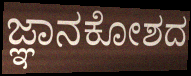
ಜ್ಞಾನಕೋಶದ